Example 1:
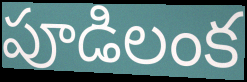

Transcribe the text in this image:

పూడిలంక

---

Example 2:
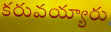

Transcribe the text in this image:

కరువయ్యారు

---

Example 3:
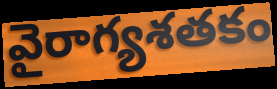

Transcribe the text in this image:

వైరాగ్యశతకం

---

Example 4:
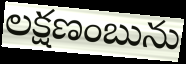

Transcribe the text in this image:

లక్షణంబును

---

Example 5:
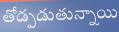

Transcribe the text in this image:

తోడ్పడుతున్నాయి